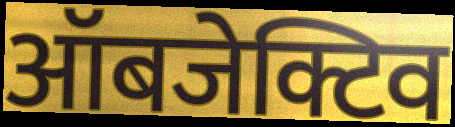
ऑबजेक्टिव